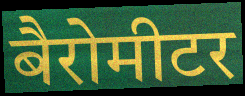
बैरोमीटर